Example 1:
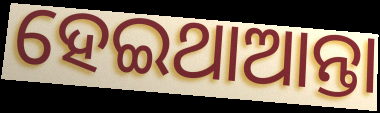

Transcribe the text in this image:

ହେଇଥାଆନ୍ତା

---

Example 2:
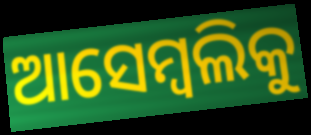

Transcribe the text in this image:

ଆସେମ୍ବଲିକୁ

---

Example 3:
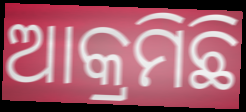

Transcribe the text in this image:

ଆକ୍ରମିଛି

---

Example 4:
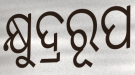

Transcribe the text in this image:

କ୍ଷୁଦ୍ରରୂପ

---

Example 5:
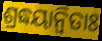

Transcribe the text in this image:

ଶ୍ରଦ୍ଧୟାନ୍ୱିତାଃ